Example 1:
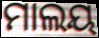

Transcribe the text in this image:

ମାଲୟ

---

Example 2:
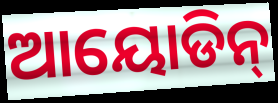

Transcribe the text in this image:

ଆୟୋଡିନ୍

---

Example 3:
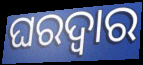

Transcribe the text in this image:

ଘରଦ୍ବାର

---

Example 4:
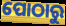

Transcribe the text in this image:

ପୋଠାରୁ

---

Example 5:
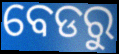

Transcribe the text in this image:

ବେଡରୁ